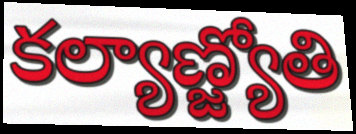
కల్యాణ్జ్యోతి